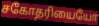
சகோதரியையோ